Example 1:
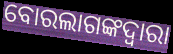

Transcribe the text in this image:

ବୋରଲାଗଙ୍କଦ୍ୱାରା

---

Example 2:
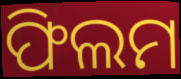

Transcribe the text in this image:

ଫିଲମ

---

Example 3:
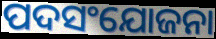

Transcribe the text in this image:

ପଦସଂଯୋଜନା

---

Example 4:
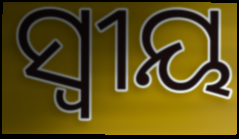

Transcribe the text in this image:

ସ୍ୱୀୟ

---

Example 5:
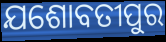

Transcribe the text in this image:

ଯଶୋବତୀପୁର